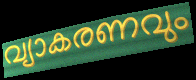
വ്യാകരണവും